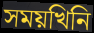
সময়খিনি